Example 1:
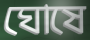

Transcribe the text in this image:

ঘোষে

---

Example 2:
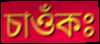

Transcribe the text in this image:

চাওঁকঃ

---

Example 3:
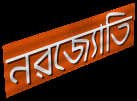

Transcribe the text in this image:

নৱজ্যোতি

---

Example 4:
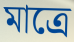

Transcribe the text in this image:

মাত্ৰে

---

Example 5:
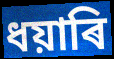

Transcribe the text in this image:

ধয়াৰি